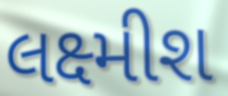
લક્ષ્મીશ